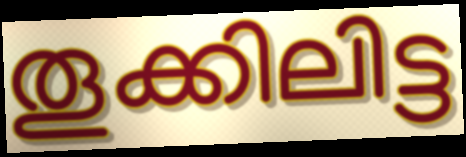
തൂക്കിലിട്ട